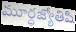
మూర్ధజ్యోతిషి